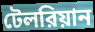
টেলরিয়ান